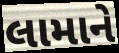
લામાને